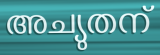
അച്യുതന്